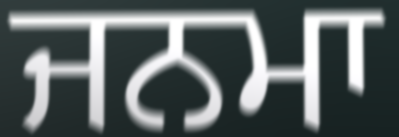
ਜਨਮਾ